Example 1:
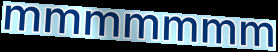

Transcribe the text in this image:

mmmmmmm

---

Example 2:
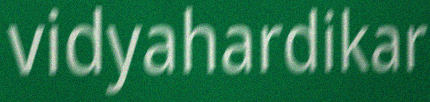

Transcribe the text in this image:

vidyahardikar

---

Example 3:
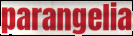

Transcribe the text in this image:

parangelia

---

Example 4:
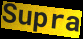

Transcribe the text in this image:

Supra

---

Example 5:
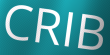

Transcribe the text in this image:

CRIB